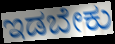
ಇಡಬೇಕು